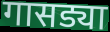
गासड्या